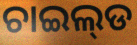
ଚାଇଲ୍‌ଡ